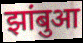
झांबुआ